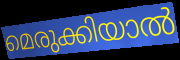
മെരുക്കിയാൽ